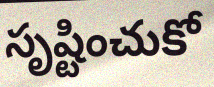
సృష్టించుకో